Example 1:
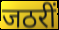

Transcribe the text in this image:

जठरीं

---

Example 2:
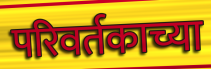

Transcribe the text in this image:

परिवर्तकाच्या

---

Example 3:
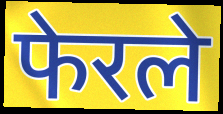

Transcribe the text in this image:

फेरले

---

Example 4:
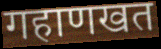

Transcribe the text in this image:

गहाणखत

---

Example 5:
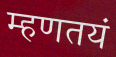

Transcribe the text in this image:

म्हणतयं